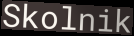
Skolnik